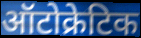
ऑटोक्रेटिक